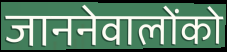
जाननेवालोंको